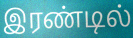
இரண்டில்